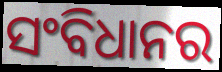
ସଂବିଧାନର